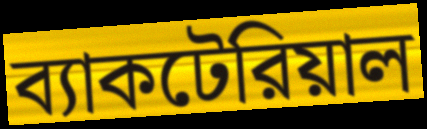
ব্যাকটেরিয়াল